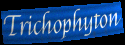
Trichophyton